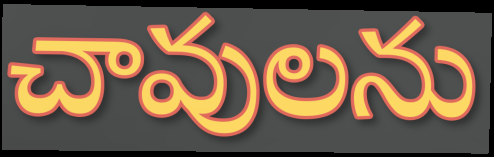
చావులను